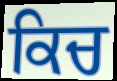
ਕਿਚ